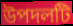
উপদলটি